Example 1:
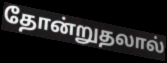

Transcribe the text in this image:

தோன்றுதலால்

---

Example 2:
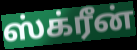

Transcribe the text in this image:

ஸ்க்ரீன்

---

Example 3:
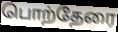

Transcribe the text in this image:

பொற்தேரை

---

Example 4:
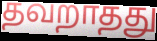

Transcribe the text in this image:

தவறாதது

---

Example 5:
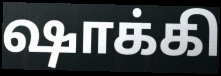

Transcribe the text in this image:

ஷாக்கி